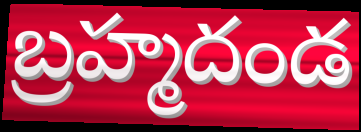
బ్రహ్మదండ